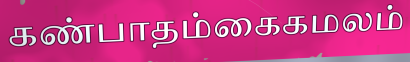
கண்பாதம்கைகமலம்